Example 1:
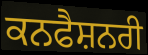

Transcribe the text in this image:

ਕਨਫੈਸ਼ਨਰੀ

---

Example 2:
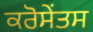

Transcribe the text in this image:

ਕਰੋਸੇਂਤਸ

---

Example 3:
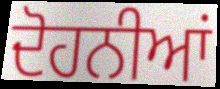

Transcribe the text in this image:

ਦੋਹਨੀਆਂ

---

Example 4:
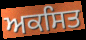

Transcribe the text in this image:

ਅਕਸਿਤ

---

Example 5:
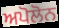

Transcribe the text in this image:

ਅਪੋਲੋਨ